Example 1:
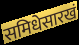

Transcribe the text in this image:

समिधेसारखं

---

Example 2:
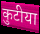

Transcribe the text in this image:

कुटीया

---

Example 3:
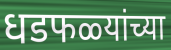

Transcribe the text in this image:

धडफळ्यांच्या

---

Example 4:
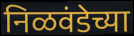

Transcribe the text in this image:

निळवंडेच्या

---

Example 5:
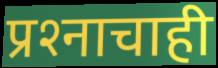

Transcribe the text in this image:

प्रश्नाचाही